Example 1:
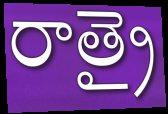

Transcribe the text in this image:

రాత్రై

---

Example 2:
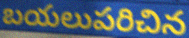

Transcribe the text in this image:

బయలుపరిచిన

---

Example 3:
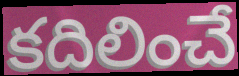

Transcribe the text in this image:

కదిలించే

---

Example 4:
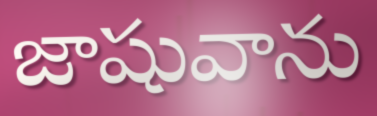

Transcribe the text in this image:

జాషువాను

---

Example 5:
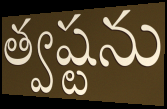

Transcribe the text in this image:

త్వష్టను